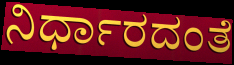
ನಿರ್ಧಾರದಂತೆ